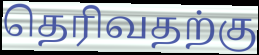
தெரிவதற்கு